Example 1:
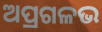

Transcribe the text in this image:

ଅପ୍ରଗଳଭ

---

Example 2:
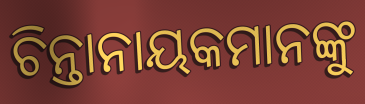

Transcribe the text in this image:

ଚିନ୍ତାନାୟକମାନଙ୍କୁ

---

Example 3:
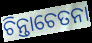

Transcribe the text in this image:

ଚିନ୍ତାଚେତନା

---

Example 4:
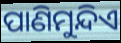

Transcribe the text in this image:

ପାଣିମୁନ୍ଦିଏ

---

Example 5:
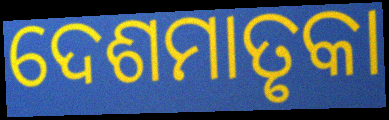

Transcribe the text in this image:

ଦେଶମାତୃକା